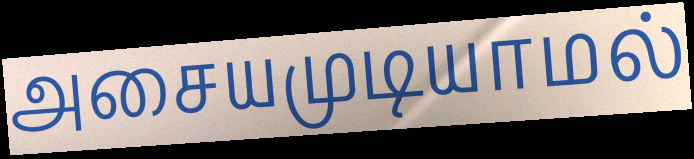
அசையமுடியாமல்